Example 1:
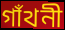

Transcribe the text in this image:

গাঁথনী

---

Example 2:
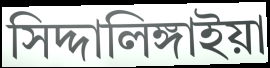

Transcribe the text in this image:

সিদ্দালিঙ্গাইয়া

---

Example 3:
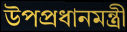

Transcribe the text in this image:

উপপ্রধানমন্ত্রী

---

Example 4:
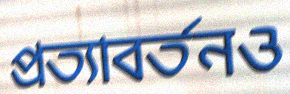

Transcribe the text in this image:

প্রত্যাবর্তনও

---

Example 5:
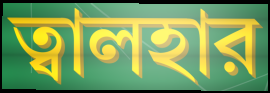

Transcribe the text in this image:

ত্বালহার